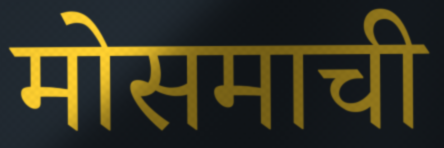
मोसमाची